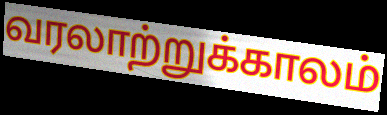
வரலாற்றுக்காலம்